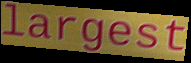
largest